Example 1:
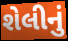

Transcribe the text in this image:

શેલીનું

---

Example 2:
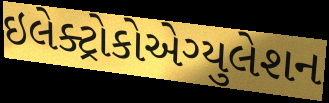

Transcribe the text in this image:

ઇલેક્ટ્રોકોએગ્યુલેશન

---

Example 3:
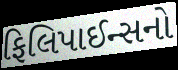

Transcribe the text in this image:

ફિલિપાઈન્સનો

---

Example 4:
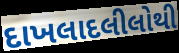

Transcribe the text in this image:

દાખલાદલીલોથી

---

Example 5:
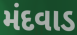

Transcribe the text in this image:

મંદવાડ